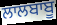
ਲਾਲਬਾਬੂ